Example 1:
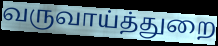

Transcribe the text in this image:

வருவாய்த்துறை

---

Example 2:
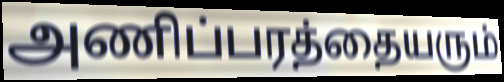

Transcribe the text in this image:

அணிப்பரத்தையரும்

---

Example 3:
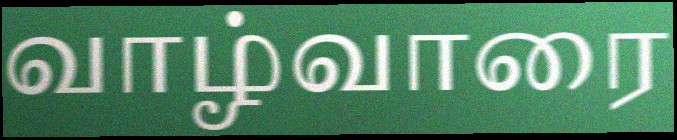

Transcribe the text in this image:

வாழ்வாரை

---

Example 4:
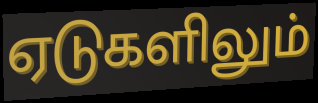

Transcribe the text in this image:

ஏடுகளிலும்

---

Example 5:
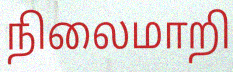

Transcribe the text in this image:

நிலைமாறி